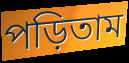
পড়িতাম